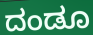
ದಂಡೂ